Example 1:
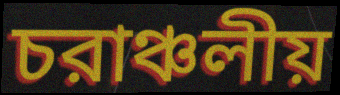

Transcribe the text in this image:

চরাঞ্চলীয়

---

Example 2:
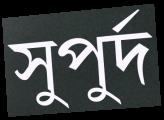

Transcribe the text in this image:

সুপুর্দ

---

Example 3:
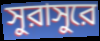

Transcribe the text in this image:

সুরাসুরে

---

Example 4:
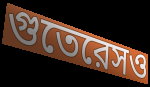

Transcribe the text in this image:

গুতেরেসও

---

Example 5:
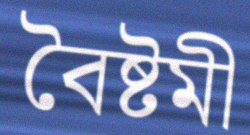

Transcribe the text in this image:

বৈষ্টমী